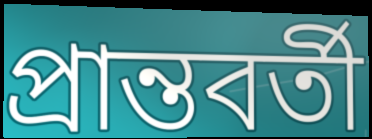
প্রান্তবর্তী